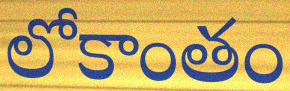
లోకాంతం